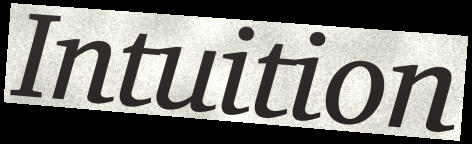
Intuition